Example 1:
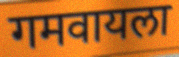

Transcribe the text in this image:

गमवायला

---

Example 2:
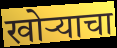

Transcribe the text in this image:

खोऱ्याचा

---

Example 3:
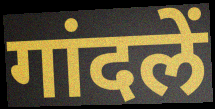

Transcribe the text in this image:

गांदलें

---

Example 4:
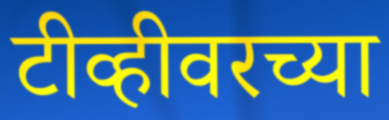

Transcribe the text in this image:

टीव्हीवरच्या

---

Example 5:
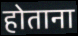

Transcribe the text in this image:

होताना